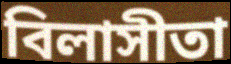
বিলাসীতা